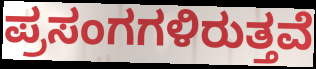
ಪ್ರಸಂಗಗಳಿರುತ್ತವೆ